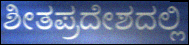
ಶೀತಪ್ರದೇಶದಲ್ಲಿ